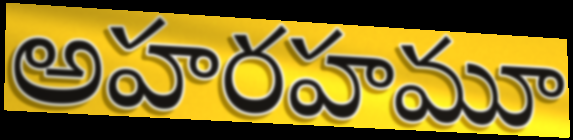
అహరహమూ